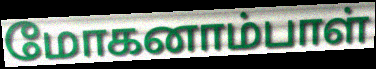
மோகனாம்பாள்